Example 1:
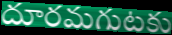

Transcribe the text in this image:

దూరమగుటకు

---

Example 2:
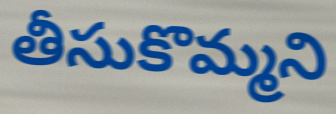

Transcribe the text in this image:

తీసుకొమ్మని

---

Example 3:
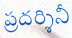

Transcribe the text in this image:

ప్రదర్శినీ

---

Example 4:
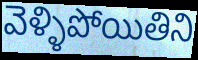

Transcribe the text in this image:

వెళ్ళిపోయితిని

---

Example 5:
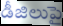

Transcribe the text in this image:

డీజిలుపై